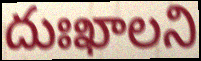
దుఃఖాలని